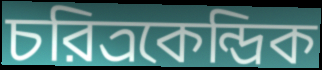
চরিত্রকেন্দ্রিক